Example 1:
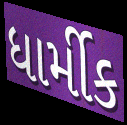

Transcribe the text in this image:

ધાર્મીક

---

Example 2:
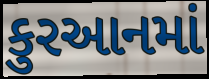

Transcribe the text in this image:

કુરઆનમાં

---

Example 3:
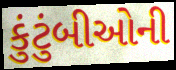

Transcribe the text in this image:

કુંટુંબીઓની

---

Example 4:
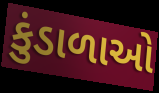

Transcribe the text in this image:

કુંડાળાઓ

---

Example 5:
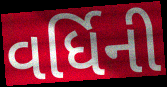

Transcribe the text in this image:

વર્ધિની